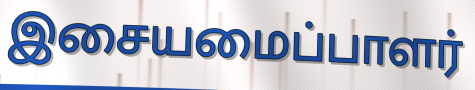
இசையமைப்பாளர்